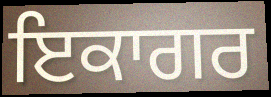
ਇਕਾਗਰ